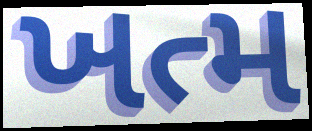
ખત્મ